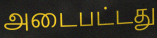
அடைபட்டது